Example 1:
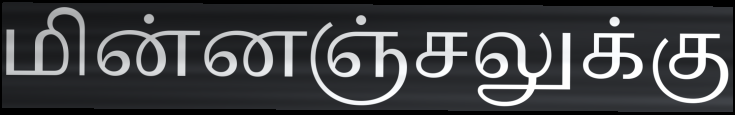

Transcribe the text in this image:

மின்னஞ்சலுக்கு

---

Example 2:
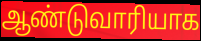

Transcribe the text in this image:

ஆண்டுவாரியாக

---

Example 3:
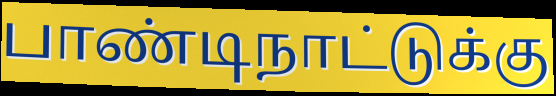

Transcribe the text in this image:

பாண்டிநாட்டுக்கு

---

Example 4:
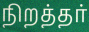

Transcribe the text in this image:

நிறத்தர்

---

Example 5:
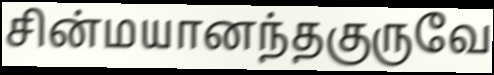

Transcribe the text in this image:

சின்மயானந்தகுருவே